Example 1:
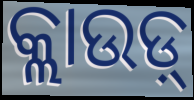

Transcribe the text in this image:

କ୍ଲାଉଡ଼୍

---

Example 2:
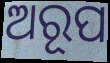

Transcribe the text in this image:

ଅରୂପ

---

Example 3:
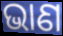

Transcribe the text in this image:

ଭାଣ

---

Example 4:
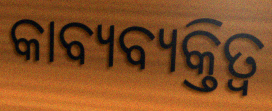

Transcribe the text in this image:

କାବ୍ୟବ୍ୟକ୍ତିତ୍ୱ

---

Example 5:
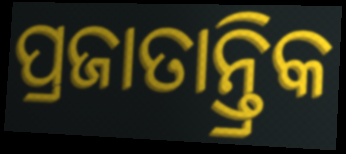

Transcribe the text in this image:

ପ୍ରଜାତାନ୍ତ୍ରିକ